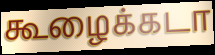
கூழைக்கடா